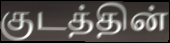
குடத்தின்